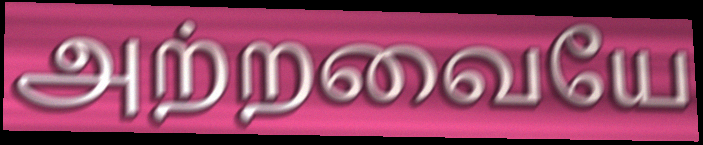
அற்றவையே